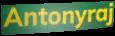
Antonyraj